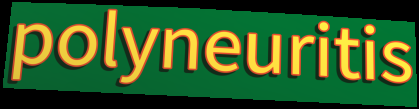
polyneuritis